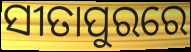
ସୀତାପୁରରେ